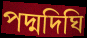
পদ্মদিঘি